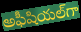
అఫీషియల్‌గా